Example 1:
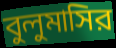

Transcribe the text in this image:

বুলুমাসির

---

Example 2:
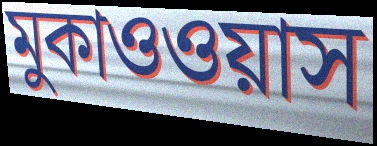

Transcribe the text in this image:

মুকাওওয়াস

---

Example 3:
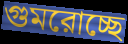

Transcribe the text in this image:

গুমরোচ্ছে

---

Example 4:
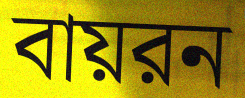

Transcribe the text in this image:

বায়রন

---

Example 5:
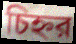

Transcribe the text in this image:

চিহ্নর